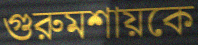
গুরুমশায়কে